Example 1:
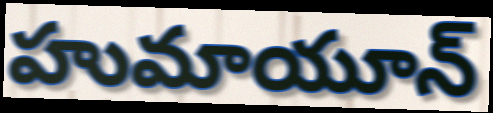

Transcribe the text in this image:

హుమాయూన్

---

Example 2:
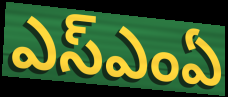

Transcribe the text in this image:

ఎస్ఎంఏ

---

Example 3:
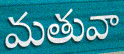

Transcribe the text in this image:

మతువా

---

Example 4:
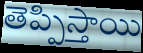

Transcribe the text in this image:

తెప్పిస్తాయి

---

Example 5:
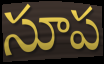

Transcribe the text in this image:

సూప